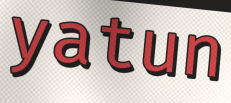
yatun